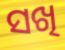
ସଖି